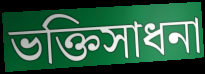
ভক্তিসাধনা